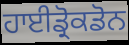
ਹਾਈਡ੍ਰੋਕਡੋਨ